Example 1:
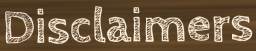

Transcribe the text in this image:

Disclaimers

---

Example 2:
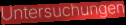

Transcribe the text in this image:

Untersuchungen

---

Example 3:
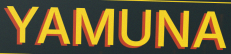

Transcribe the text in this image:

YAMUNA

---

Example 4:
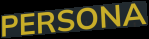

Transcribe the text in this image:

PERSONA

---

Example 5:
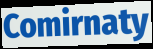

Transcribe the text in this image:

Comirnaty